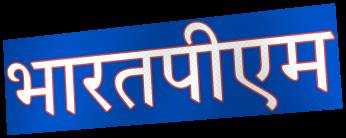
भारतपीएम